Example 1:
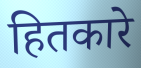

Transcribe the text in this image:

हितकारे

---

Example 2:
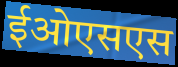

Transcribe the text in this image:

ईओएसएस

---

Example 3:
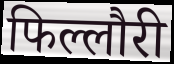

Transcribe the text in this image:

फिल्लौरी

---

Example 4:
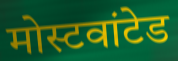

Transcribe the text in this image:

मोस्टवांटेड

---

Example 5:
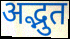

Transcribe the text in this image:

अद्भुत